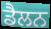
ਡੈਲਨ